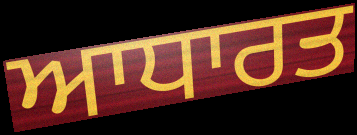
ਆਧਾਰਤ